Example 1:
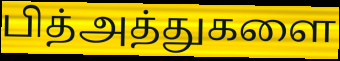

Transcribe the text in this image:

பித்அத்துகளை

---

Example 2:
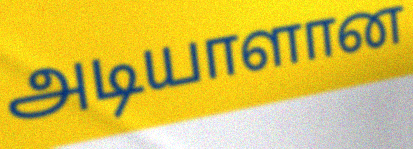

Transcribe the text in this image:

அடியாளான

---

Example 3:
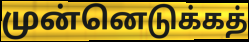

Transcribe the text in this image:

முன்னெடுக்கத்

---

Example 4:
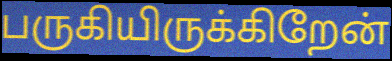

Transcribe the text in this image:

பருகியிருக்கிறேன்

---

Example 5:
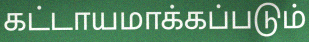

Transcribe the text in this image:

கட்டாயமாக்கப்படும்